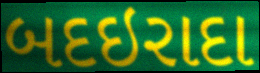
બદઇરાદા